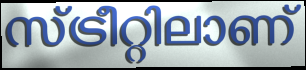
സ്ട്രീറ്റിലാണ്